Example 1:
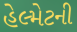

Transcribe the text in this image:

હેલ્મેટની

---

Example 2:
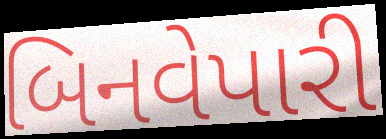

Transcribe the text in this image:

બિનવેપારી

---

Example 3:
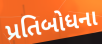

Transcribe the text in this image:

પ્રતિબોધના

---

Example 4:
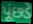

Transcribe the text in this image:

પૂંછડે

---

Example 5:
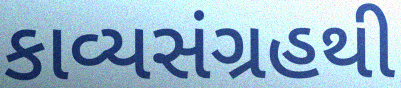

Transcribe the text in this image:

કાવ્યસંગ્રહથી